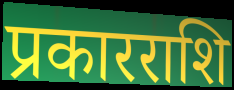
प्रकारराशि